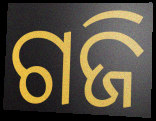
ଗଜି